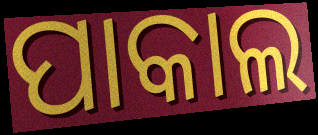
ପାକାଲ